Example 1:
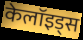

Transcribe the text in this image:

केलॉइड्स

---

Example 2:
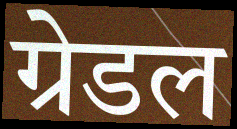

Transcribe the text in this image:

ग्रेडल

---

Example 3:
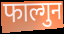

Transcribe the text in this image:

फाल्गुन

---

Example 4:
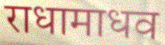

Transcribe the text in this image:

राधामाधव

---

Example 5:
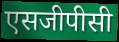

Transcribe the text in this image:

एसजीपीसी